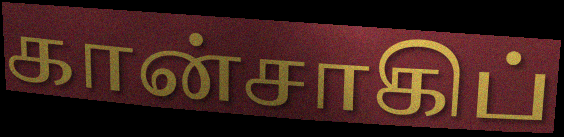
கான்சாகிப்